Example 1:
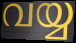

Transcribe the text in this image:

വയ്യ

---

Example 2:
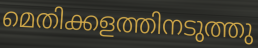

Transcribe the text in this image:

മെതിക്കളത്തിനടുത്തു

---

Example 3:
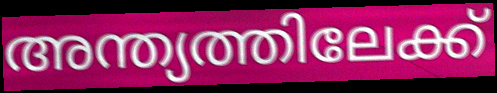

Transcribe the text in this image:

അന്ത്യത്തിലേക്ക്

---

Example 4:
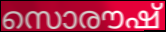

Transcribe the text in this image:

സൊരൗഷ്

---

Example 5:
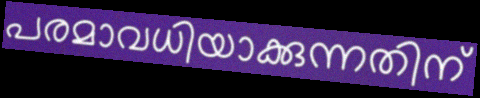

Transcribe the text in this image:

പരമാവധിയാക്കുന്നതിന്